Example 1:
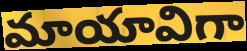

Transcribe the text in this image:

మాయావిగా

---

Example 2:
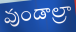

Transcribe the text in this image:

వుండాల్రా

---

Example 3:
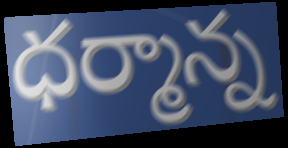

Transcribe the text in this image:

ధర్మాన్న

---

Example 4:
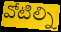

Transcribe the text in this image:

వోటిల్ని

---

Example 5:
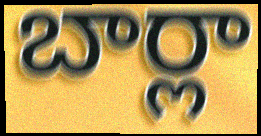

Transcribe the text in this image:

బార్లా